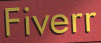
Fiverr